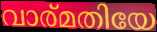
വാര്മതിയേ